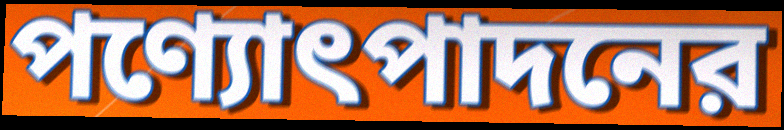
পণ্যোৎপাদনের